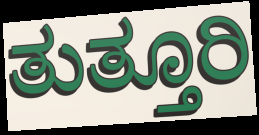
ತುತ್ತೂರಿ